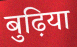
बुढ़िया